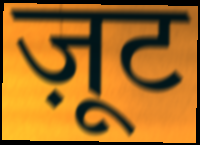
ज़ूट